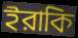
ইরাকি